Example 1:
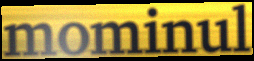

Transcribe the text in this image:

mominul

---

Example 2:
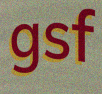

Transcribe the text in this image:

gsf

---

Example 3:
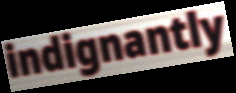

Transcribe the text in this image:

indignantly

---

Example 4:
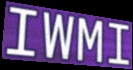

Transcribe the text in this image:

IWMI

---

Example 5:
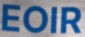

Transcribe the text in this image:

EOIR